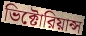
ভিক্টোরিয়ান্স